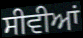
ਸੀਵੀਆਂ